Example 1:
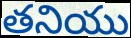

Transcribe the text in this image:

తనియు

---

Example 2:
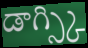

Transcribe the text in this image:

డాగ్స్కి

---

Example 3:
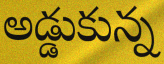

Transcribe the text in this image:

అడ్డుకున్న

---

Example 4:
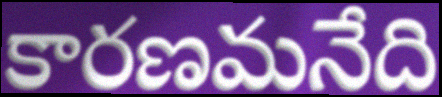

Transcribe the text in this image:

కారణమనేది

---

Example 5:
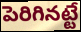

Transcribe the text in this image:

పెరిగినట్టే